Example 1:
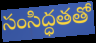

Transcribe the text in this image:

సంసిద్ధతతో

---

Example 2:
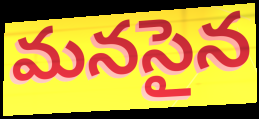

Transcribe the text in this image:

మనసైన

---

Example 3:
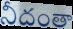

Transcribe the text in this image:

నీదంతా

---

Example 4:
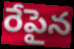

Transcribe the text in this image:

రేపైన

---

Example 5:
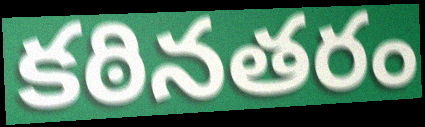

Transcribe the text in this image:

కఠినతరం